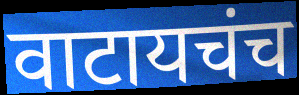
वाटायचंच